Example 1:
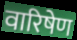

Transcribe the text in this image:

वारिषेण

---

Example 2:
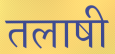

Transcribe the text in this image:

तलाषी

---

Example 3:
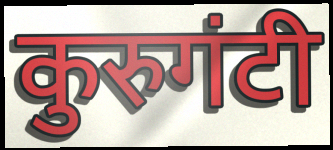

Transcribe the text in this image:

कुरुगंटी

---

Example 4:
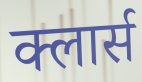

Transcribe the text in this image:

क्लार्स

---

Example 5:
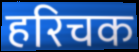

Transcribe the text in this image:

हरिचक